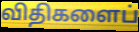
விதிகளைப்